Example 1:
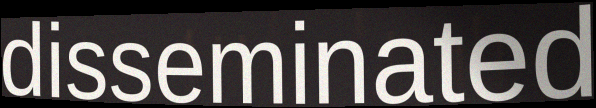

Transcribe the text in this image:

disseminated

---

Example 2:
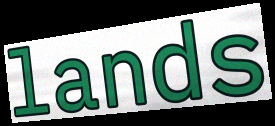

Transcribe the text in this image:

lands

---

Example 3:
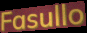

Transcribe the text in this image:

Fasullo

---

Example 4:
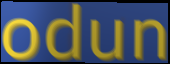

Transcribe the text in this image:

odun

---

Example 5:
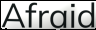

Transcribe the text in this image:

Afraid